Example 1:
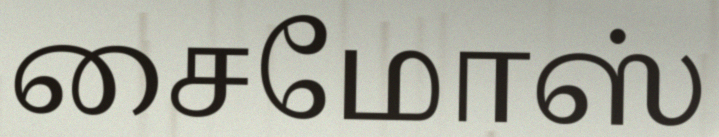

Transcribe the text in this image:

சைமோஸ்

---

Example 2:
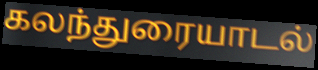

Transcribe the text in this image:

கலந்துரையாடல்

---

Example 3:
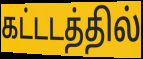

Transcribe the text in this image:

கட்டடத்தில்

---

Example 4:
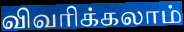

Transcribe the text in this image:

விவரிக்கலாம்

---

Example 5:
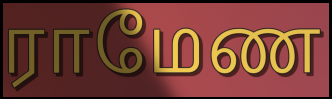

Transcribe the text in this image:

ராமேண